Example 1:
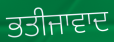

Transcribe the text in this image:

ਭਤੀਜਾਵਾਦ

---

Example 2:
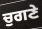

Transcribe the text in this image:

ਚੁਗਣੇ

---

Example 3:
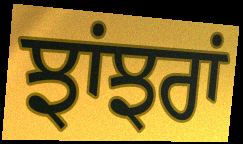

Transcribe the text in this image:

ਝਾਂਝਰਾਂ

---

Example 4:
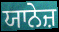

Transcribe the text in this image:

ਯਾਨੇਜ਼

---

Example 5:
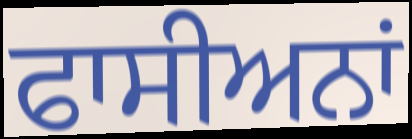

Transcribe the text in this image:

ਫਾਸੀਅਨਾਂ